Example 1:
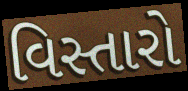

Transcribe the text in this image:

વિસ્તારો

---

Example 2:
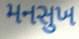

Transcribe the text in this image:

મનસુખ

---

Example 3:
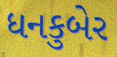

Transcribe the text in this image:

ધનકુબેર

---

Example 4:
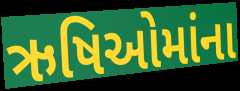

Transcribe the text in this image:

ઋષિઓમાંના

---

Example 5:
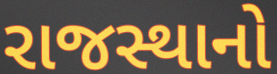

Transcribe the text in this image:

રાજસ્થાનો